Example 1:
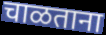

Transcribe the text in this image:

चाळताना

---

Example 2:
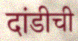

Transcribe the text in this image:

दांडीची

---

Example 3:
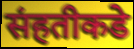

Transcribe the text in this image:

संहतीकडे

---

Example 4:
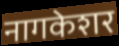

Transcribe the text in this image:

नागकेशर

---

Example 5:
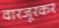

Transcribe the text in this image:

वारजूरकर